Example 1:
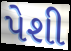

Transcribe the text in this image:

પેશી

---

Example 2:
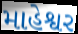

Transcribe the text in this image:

માહેશ્વર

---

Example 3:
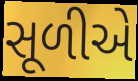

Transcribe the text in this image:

સૂળીએ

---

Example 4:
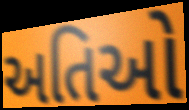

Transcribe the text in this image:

અતિઓ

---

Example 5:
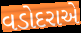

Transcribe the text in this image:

વડોદરાએ